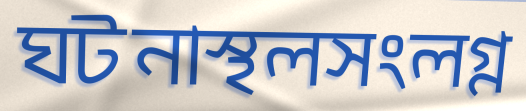
ঘটনাস্থলসংলগ্ন